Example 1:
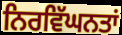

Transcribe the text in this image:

ਨਿਰਵਿੱਘਨਤਾਂ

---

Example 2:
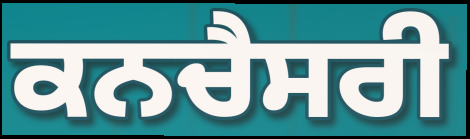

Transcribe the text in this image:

ਕਨਚੈਸਰੀ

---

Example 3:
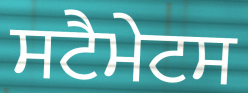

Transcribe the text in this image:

ਸਟੈਮੇਟਸ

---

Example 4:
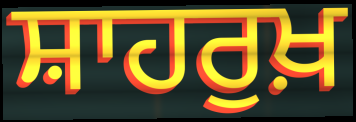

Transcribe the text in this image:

ਸ਼ਾਹਰੁਖ਼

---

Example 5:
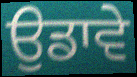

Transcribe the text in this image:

ਉਡਾਵੇ